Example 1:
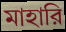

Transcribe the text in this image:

মাহারি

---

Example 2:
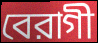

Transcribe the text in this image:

বেরাগী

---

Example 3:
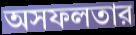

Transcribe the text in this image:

অসফলতার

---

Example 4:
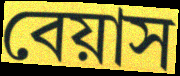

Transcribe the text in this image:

বেয়াস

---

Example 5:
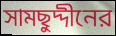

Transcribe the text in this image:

সামছুদ্দীনের